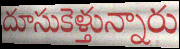
దూసుకెళ్తున్నారు